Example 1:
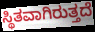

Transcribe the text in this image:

ಸ್ಥಿತವಾಗಿರುತ್ತದೆ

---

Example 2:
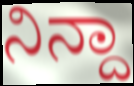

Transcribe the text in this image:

ನಿನ್ದಾ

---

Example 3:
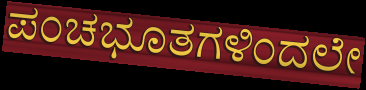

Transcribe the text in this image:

ಪಂಚಭೂತಗಳಿಂದಲೇ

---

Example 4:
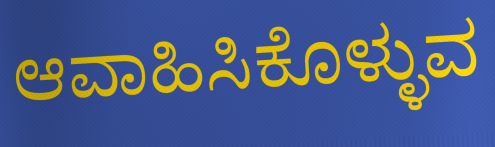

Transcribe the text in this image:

ಆವಾಹಿಸಿಕೊಳ್ಳುವ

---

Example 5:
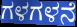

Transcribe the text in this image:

ಗಳಗಳನೆ